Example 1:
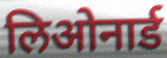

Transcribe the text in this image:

लिओनार्ड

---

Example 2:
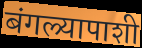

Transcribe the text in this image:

बंगल्यापाशी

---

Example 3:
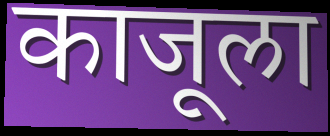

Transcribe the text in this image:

काजूला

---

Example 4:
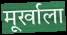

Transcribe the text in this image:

मूर्खाला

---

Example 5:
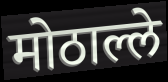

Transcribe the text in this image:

मोठाल्ले